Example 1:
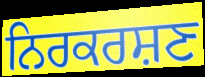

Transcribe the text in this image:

ਨਿਰਕਰਸ਼ਣ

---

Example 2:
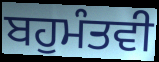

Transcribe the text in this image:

ਬਹੁਮੰਤਵੀ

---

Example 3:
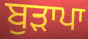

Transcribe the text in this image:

ਬੁੜਾਪਾ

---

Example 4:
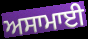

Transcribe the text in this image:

ਅਸਾਮਾਈ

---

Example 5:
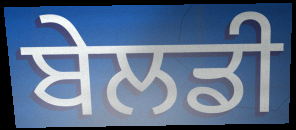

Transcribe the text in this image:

ਬੇਲਡੀ